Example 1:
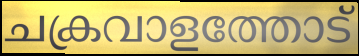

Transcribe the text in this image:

ചക്രവാളത്തോട്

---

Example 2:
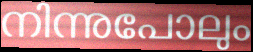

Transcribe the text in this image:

നിന്നുപോലും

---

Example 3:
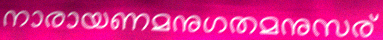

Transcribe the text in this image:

നാരായണമനുഗതമനുസര്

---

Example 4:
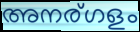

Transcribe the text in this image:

അനര്ഗളം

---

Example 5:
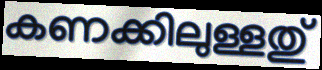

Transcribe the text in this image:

കണക്കിലുള്ളതു്